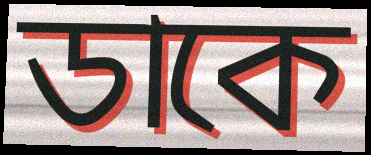
ডাকে